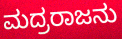
ಮದ್ರರಾಜನು